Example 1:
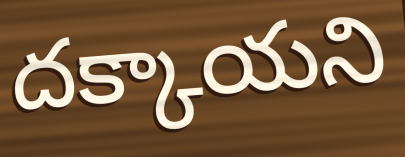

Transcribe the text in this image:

దక్కాయని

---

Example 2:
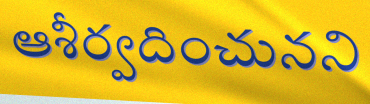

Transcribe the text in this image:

ఆశీర్వదించునని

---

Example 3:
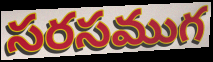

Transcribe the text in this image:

సరసముగ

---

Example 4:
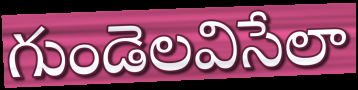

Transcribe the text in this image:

గుండెలవిసేలా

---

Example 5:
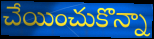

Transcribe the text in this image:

చేయించుకొన్నా